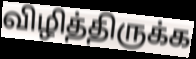
விழித்திருக்க